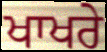
ਖਾਖਰੇ